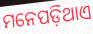
ମନେପଡ଼ିଥାଏ